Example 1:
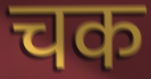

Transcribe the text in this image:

चक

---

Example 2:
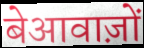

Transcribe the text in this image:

बेआवाज़ों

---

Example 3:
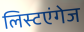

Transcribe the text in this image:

लिस्टएंगेज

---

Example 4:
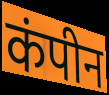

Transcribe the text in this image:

कंपीन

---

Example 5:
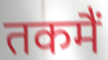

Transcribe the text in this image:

तकमैं